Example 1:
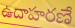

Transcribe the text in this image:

ఉదాహరణే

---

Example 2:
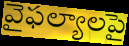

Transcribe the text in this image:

వైఫల్యాలపై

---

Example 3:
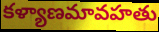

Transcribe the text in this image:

కళ్యాణమావహతు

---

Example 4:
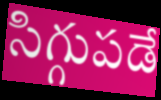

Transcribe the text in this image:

సిగ్గుపడే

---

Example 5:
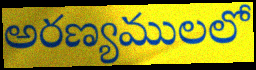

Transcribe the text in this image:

అరణ్యములలో